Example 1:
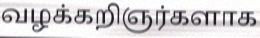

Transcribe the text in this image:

வழக்கறிஞர்களாக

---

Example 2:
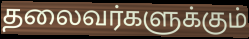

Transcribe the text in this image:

தலைவர்களுக்கும்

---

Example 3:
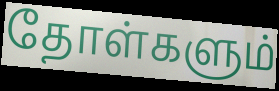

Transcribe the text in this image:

தோள்களும்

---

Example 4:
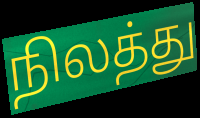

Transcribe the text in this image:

நிலத்து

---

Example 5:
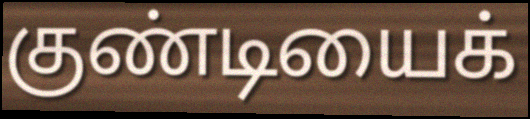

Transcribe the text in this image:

குண்டியைக்